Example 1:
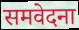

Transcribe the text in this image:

समवेदना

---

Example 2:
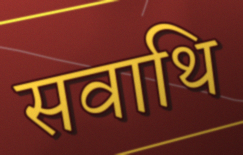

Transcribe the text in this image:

सवाथि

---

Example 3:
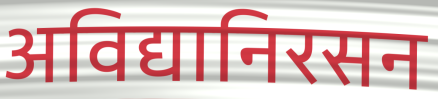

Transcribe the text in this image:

अविद्यानिरसन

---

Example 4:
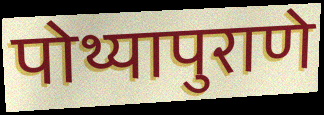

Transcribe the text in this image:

पोथ्यापुराणे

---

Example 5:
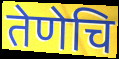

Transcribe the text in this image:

तेणेचि